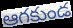
ఆగకుండ